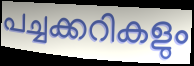
പച്ചക്കറികളും